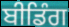
ਬੀਡਿੰਗ